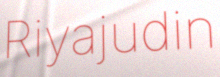
Riyajudin